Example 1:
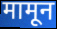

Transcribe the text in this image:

मामून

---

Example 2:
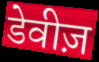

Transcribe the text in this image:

डेवीज़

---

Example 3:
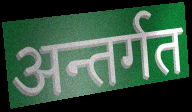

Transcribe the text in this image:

अन्तर्गत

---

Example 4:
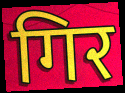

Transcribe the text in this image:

गिर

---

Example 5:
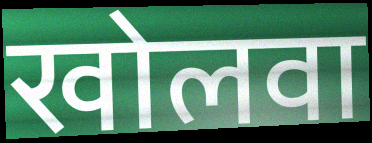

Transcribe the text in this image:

खोलवा